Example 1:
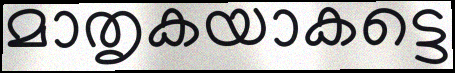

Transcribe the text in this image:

മാതൃകയാകട്ടെ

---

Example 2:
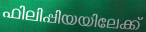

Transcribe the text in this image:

ഫിലിപ്പിയയിലേക്ക്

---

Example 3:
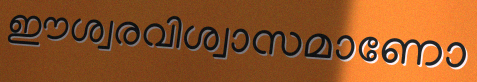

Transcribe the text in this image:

ഈശ്വരവിശ്വാസമാണോ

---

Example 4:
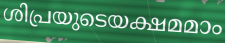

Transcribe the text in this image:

ശിപ്രയുടെയക്ഷമമാം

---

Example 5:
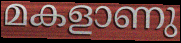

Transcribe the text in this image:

മകളാണു